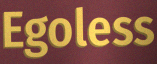
Egoless